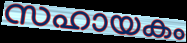
സഹായകം